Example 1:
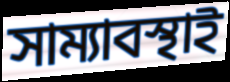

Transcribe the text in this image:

সাম্যাবস্থাই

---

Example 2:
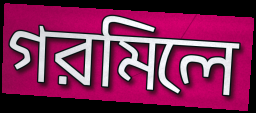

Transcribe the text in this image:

গরমিলে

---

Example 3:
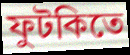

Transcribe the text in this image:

ফুটকিতে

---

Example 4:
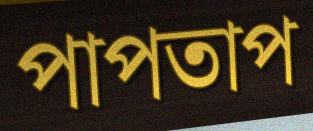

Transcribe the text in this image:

পাপতাপ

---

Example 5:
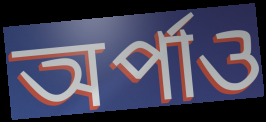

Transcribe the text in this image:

অর্পাও